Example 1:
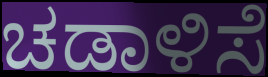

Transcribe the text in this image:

ಚಡಾಳಿಸೆ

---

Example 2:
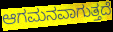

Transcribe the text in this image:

ಆಗಮನವಾಗುತ್ತದೆ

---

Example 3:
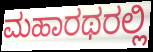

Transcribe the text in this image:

ಮಹಾರಥರಲ್ಲಿ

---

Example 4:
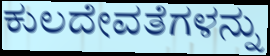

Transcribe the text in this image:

ಕುಲದೇವತೆಗಳನ್ನು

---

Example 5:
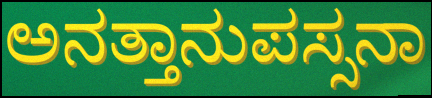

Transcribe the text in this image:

ಅನತ್ತಾನುಪಸ್ಸನಾ